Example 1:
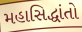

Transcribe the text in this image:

મહાસિદ્ધાંતો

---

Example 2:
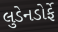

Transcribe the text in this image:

લુડેનડોર્ફે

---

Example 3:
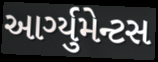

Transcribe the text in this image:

આર્ગ્યુમેન્ટસ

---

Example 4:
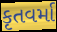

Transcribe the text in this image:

કૃતવર્મા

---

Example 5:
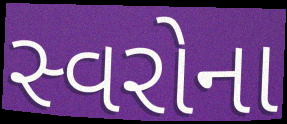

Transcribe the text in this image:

સ્વરોના